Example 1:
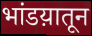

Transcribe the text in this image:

भांडय़ातून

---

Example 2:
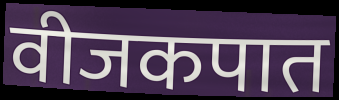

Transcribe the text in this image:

वीजकपात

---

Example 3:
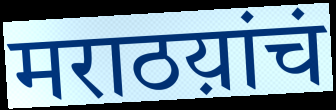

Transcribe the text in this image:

मराठय़ांचं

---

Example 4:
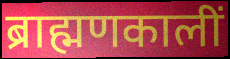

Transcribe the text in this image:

ब्राह्मणकालीं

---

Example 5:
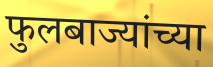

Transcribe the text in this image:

फुलबाज्यांच्या